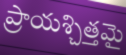
ప్రాయశ్చిత్తమై